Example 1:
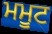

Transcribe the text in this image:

ਮਮੂਟ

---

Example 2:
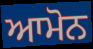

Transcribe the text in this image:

ਆਮੋਨ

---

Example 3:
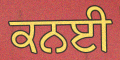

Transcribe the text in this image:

ਕਨਈ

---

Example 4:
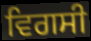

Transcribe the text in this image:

ਵਿਗਸੀ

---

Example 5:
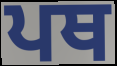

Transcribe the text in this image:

ਪਥ